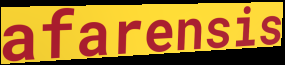
afarensis